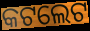
କଟଲେଟ